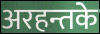
अरहन्तके